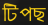
টিপছ